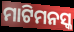
ମାଟିମନସ୍କ